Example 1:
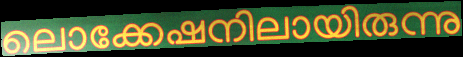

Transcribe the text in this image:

ലൊക്കേഷനിലായിരുന്നു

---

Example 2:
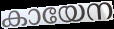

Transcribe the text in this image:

കായേന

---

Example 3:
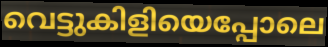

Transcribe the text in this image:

വെട്ടുകിളിയെപ്പോലെ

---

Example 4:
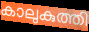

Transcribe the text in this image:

കാലുകുത്തി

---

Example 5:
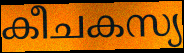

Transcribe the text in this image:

കീചകസ്യ